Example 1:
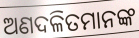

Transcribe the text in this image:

ଅଣଦଳିତମାନଙ୍କ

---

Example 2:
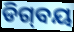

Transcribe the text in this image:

ଡିଗ୍‌ବୟ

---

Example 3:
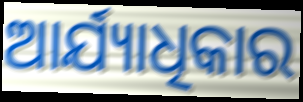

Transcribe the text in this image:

ଆର୍ଯ୍ୟାଧିକାର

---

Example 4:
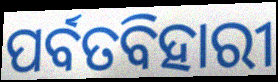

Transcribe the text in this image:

ପର୍ବତବିହାରୀ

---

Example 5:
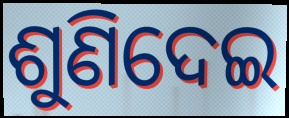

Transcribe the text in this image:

ଶୁଣିଦେଇ